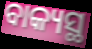
ବାକ୍ୟସ୍ଥ